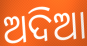
ଅଦିଆ